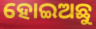
ହୋଇଅଛୁ